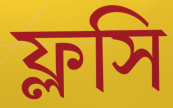
ফ্লসি